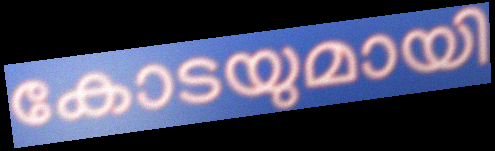
കോടയുമായി